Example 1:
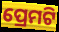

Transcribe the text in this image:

ପ୍ରେମଟି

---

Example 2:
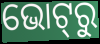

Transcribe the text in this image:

ଭୋଟ୍‌ରୁ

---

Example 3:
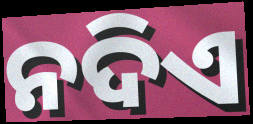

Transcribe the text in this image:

ନଦିଏ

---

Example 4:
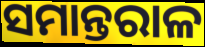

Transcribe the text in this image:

ସମାନ୍ତରାଳ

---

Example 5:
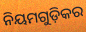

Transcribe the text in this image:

ନିୟମଗୁଡ଼ିକର